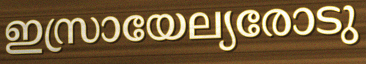
ഇസ്രായേല്യരോടു